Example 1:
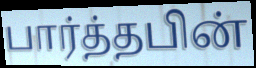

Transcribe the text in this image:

பார்த்தபின்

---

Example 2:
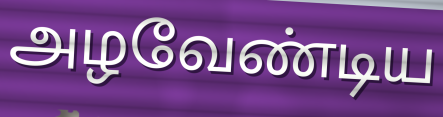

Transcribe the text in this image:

அழவேண்டிய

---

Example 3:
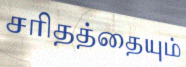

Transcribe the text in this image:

சரிதத்தையும்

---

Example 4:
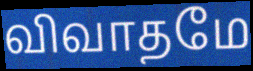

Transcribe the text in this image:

விவாதமே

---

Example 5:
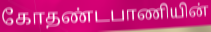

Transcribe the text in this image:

கோதண்டபாணியின்